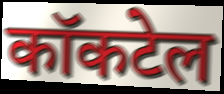
कॉकटेल